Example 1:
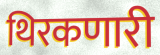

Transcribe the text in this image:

थिरकणारी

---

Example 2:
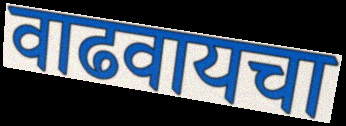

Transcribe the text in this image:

वाढवायचा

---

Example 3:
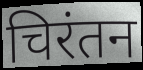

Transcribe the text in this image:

चिरंतन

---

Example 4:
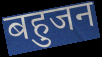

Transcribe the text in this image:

बहुजन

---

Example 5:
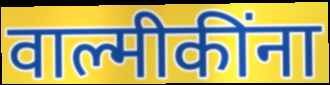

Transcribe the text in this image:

वाल्मीकींना